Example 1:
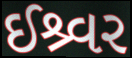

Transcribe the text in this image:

ઈશ્ર્વર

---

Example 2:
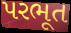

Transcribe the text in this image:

પરભૂત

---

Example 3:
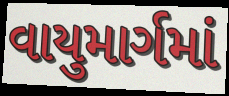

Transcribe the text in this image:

વાયુમાર્ગમાં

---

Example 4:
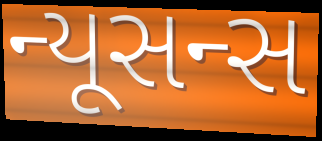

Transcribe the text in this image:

ન્યૂસન્સ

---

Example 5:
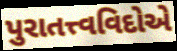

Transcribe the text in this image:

પુરાતત્ત્વવિદોએ